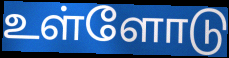
உள்ளோடு